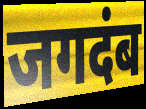
जगदंब